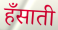
हँसाती